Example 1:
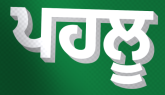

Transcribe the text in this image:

ਪਹਲੂ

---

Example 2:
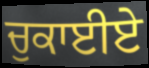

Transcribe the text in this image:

ਚੁਕਾਈਏ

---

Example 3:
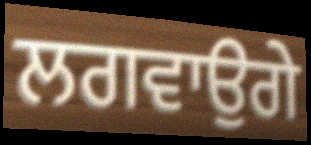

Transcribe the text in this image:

ਲਗਵਾਉਗੇ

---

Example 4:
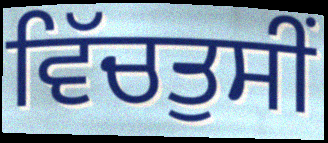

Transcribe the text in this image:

ਵਿੱਚਤੁਸੀਂ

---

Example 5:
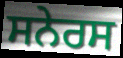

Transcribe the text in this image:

ਸਨੇਰਸ